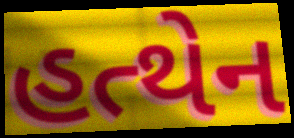
હત્થેન